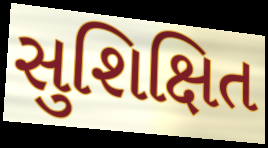
સુશિક્ષિત